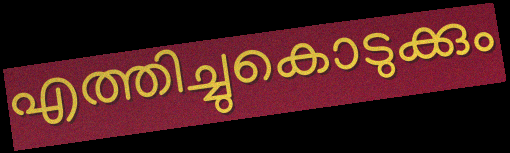
എത്തിച്ചുകൊടുക്കും